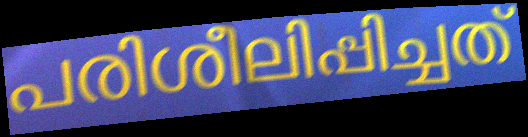
പരിശീലിപ്പിച്ചത്